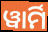
ୱାର୍ମି